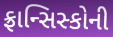
ફ્રાન્સિસ્કોની